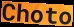
Choto